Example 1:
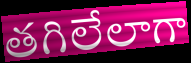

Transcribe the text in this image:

తగిలేలాగా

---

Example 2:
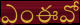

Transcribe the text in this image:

ఎంఈవో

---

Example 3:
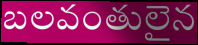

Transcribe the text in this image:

బలవంతులైన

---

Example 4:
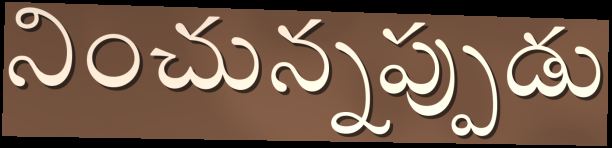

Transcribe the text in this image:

నించున్నప్పుడు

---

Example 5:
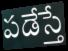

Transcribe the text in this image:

పడేస్తే